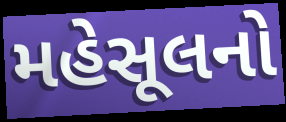
મહેસૂલનો